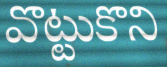
వొట్టుకొని